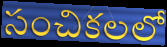
సంచికలలో